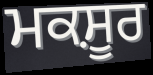
ਮਕ਼ਸੂਰ